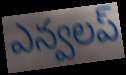
ఎన్వలప్